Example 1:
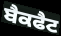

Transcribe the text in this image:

ਬੈਕਫੈਟ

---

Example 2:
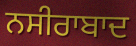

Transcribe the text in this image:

ਨਸੀਰਾਬਾਦ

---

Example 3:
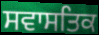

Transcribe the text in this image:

ਸਵਾਸਤਿਕ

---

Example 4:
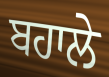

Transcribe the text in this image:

ਬਹਾਲੇ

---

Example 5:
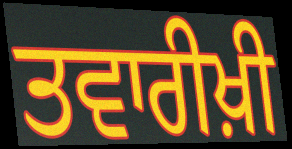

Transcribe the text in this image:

ਤਵਾਰੀਖ਼ੀ